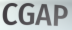
CGAP